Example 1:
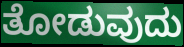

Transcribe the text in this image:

ತೋಡುವುದು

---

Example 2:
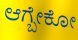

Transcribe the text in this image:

ಆಗ್ಬೇಕೋ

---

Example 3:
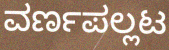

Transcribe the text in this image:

ವರ್ಣಪಲ್ಲಟ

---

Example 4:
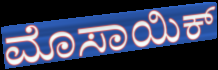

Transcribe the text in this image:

ಮೊಸಾಯಿಕ್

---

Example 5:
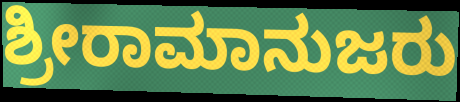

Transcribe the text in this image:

ಶ್ರೀರಾಮಾನುಜರು